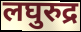
लघुरुद्र